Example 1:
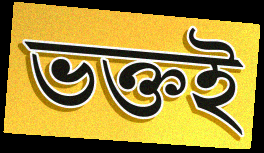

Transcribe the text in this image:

ভক্তই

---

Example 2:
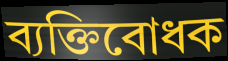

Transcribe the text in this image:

ব্যক্তিবোধক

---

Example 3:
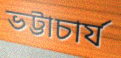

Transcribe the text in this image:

ভট্টাচাৰ্য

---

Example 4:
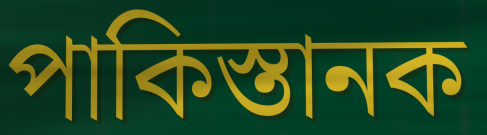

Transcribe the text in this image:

পাকিস্তানক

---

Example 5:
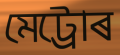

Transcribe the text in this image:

মেট্ৰোৰ